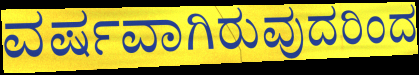
ವರ್ಷವಾಗಿರುವುದರಿಂದ